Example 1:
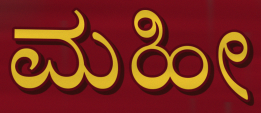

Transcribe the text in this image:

ಮಹೀ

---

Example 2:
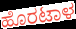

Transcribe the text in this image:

ಹೊರಟಾಳ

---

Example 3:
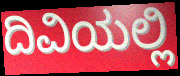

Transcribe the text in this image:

ದಿವಿಯಲ್ಲಿ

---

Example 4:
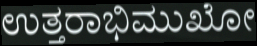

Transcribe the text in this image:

ಉತ್ತರಾಭಿಮುಖೋ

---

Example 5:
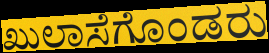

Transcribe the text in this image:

ಖುಲಾಸೆಗೊಂಡರು